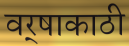
वर्षाकाठी